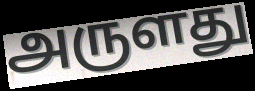
அருளது